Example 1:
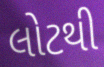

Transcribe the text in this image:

લોટથી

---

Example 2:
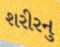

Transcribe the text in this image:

શરીરનુ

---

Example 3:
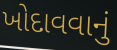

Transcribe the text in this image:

ખોદાવવાનું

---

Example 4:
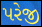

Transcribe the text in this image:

પરેજી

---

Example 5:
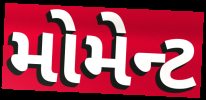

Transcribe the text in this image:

મોમેન્ટ